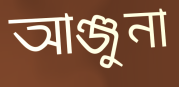
আঞ্জুনা